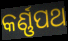
କର୍ଣ୍ଣପଥ